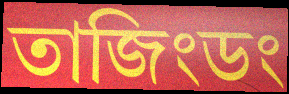
তাজিংডং